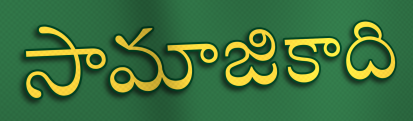
సామాజికాది